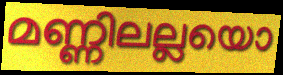
മണ്ണിലല്ലയൊ